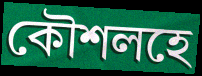
কৌশলহে